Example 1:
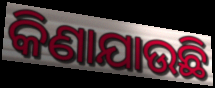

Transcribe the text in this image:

କିଣାଯାଉଛି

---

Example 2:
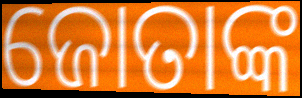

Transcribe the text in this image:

ଜୋତାଙ୍କ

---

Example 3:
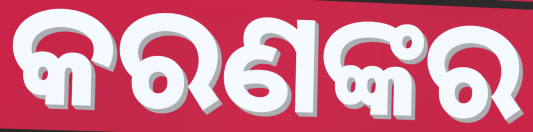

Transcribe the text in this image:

କରଣଙ୍କର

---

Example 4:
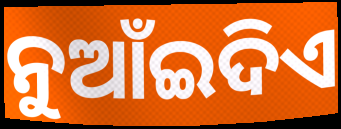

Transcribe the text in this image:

ନୁଆଁଇଦିଏ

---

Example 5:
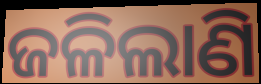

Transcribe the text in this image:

ଜଳିଲାଣି